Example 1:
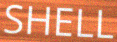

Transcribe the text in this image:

SHELL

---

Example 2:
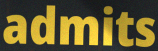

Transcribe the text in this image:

admits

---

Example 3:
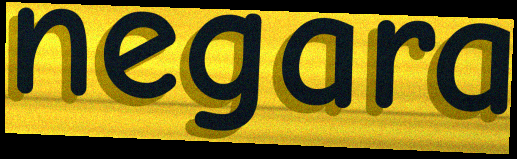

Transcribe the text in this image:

negara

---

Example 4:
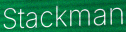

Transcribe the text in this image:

Stackman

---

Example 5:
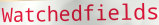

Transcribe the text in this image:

Watchedfields